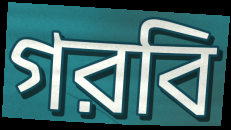
গরবি